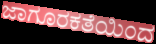
ಜಾಗೂರಕತೆಯಿಂದ